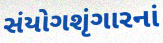
સંયોગશૃંગારનાં